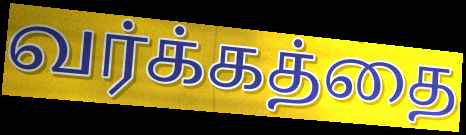
வர்க்கத்தை